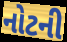
નોટની